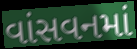
વાંસવનમાં